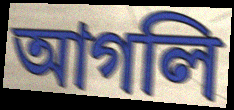
আগলি